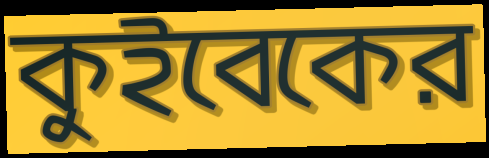
কুইবেকের